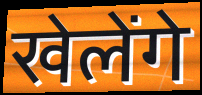
खेलेंगे